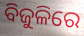
ବିଜୁଳିରେ